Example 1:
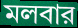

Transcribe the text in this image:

মলবার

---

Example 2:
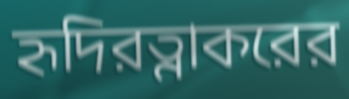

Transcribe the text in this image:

হৃদিরত্নাকরের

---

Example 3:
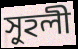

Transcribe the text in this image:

সুহলী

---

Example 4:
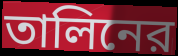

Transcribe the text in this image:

তালিনের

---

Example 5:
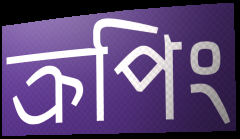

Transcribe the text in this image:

ক্রপিং